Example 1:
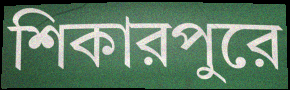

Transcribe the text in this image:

শিকারপুরে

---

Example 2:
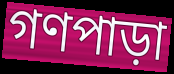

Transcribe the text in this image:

গণপাড়া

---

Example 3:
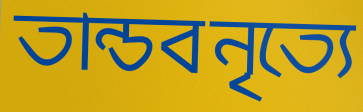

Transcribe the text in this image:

তান্ডবনৃত্যে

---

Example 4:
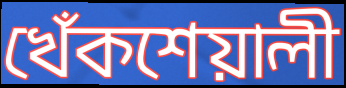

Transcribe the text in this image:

খেঁকশেয়ালী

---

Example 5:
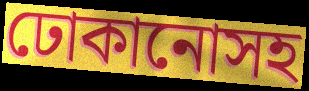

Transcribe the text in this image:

ঢোকানোসহ